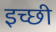
इच्छी